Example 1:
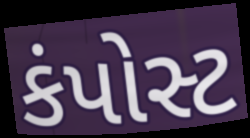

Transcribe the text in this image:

કંપોસ્ટ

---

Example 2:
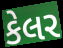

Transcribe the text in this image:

કેલર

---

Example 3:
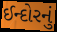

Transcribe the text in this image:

ઈન્દોરનું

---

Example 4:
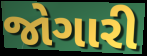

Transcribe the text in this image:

જોગારી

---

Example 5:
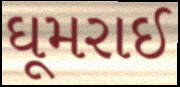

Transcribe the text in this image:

ઘૂમરાઈ